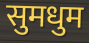
सुमधुम